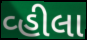
વ્હીલા